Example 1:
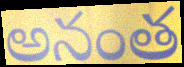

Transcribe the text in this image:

అనంత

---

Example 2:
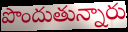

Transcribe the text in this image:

పొందుతున్నారు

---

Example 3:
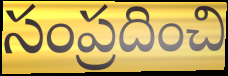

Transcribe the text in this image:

సంప్రదించి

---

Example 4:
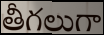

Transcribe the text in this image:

తీగలుగా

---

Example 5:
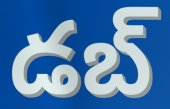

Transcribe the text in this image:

డబ్